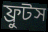
ফ্রুটস